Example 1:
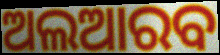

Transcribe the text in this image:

ଅଲଆରବ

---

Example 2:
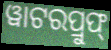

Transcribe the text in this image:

ୱାଟରପ୍ରୁଫ୍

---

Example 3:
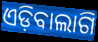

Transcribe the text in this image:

ଏଡ଼ିବାଲାଗି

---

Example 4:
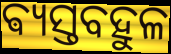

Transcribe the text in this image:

ଵ୍ୟସ୍ତବହୁଳ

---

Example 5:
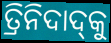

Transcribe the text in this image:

ତ୍ରିନିଦାଦ୍‍କୁ